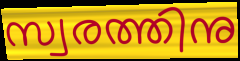
സ്വരത്തിനു